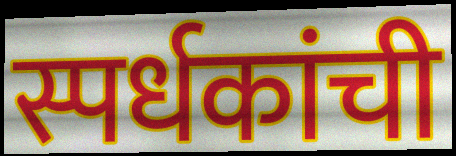
स्पर्धकांची